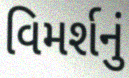
વિમર્શનું